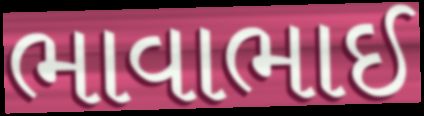
ભાવાભાઈ